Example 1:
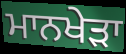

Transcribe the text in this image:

ਮਾਨਖੇੜਾ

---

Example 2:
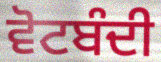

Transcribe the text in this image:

ਵੋਟਬੰਦੀ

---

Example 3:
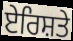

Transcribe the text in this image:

ਏਰਿਸ਼ਤੇ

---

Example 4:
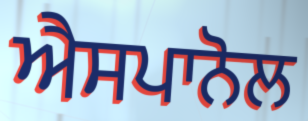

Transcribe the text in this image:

ਐਸਪਾਨੋਲ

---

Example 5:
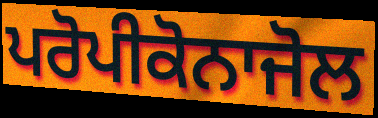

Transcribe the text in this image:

ਪਰੋਪੀਕੋਨਾਜੋਲ